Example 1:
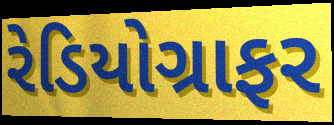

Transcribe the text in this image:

રેડિયોગ્રાફર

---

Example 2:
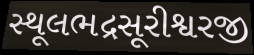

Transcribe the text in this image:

સ્થૂલભદ્રસૂરીશ્વરજી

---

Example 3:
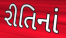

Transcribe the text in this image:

રીતિનાં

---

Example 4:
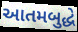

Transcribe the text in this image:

આતમબુદ્ધે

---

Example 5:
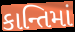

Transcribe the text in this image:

કાન્તિમાં